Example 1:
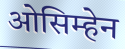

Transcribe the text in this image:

ओसिम्हेन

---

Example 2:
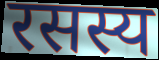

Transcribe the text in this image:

रसस्य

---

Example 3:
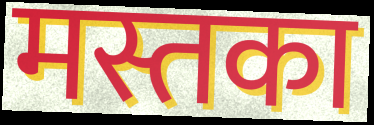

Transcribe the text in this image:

मस्तका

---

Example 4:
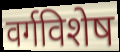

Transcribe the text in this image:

वर्गविशेष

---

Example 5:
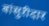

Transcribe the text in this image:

बांसुरीदार